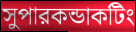
সুপারকন্ডাকটিং